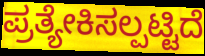
ಪ್ರತ್ಯೇಕಿಸಲ್ಪಟ್ಟಿದೆ